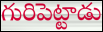
గురిపెట్టాడు